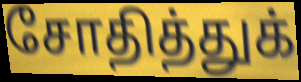
சோதித்துக்